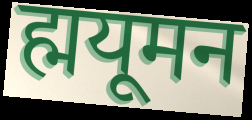
ह्मयूमन